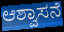
ಆಶ್ವಾಸನೆ